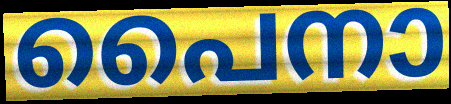
പൈനാ